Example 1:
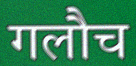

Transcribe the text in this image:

गलौच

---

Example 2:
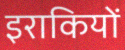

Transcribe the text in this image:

इराकियों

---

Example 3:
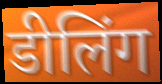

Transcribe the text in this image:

डीलिंग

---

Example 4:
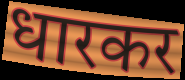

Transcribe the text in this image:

धारकर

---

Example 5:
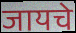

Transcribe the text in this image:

जायचे